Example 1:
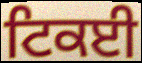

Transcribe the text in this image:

ਟਿਕਈ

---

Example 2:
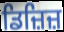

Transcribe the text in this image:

ਡਿਜ਼ਿਜ਼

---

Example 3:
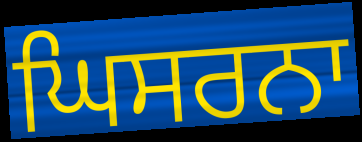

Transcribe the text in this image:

ਘਿਸਰਨਾ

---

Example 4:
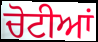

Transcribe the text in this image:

ਚੋਟੀਆਂ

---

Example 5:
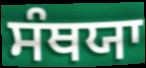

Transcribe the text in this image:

ਸੰਥਯਾ